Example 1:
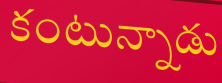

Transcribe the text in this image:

కంటున్నాడు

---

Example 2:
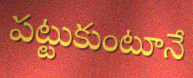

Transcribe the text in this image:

పట్టుకుంటూనే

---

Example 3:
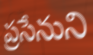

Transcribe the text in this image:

ప్రసేనుని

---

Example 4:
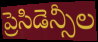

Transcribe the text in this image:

ప్రెసిడెన్సీల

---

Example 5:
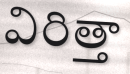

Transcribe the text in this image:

విరిత్తా